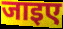
जाइए